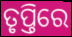
ତୃପ୍ତିରେ